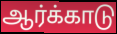
ஆர்க்காடு